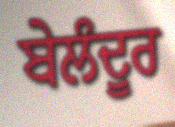
ਬੇਲੰਦੂਰ